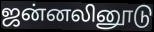
ஜன்னலினூடு